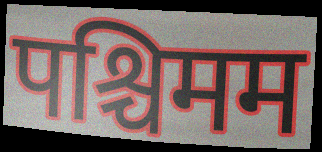
पश्चिमम